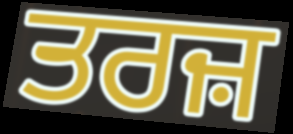
ਤਰਜ਼